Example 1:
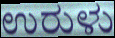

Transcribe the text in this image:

ಉರುಳು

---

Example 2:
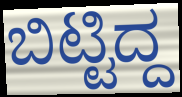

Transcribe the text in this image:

ಬಿಟ್ಟಿದ್ದ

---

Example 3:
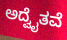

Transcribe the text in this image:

ಅದ್ವೈತವೆ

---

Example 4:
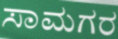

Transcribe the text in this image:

ಸಾಮಗರ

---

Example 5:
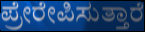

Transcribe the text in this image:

ಪ್ರೇರೇಪಿಸುತ್ತಾರೆ